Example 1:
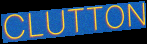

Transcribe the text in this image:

CLUTTON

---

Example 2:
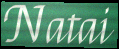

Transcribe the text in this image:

Natai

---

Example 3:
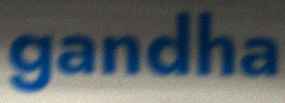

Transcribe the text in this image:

gandha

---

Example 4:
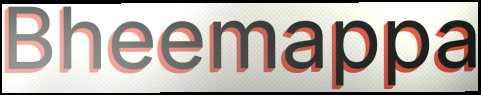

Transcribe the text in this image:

Bheemappa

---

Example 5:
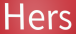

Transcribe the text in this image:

Hers